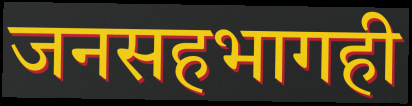
जनसहभागही